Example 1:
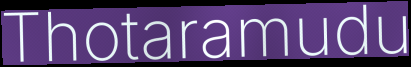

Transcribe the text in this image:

Thotaramudu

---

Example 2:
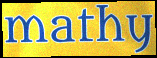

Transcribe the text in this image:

mathy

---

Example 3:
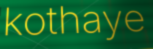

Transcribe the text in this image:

kothaye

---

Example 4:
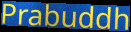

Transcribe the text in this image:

Prabuddh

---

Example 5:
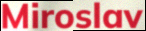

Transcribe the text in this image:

Miroslav